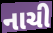
નાચી